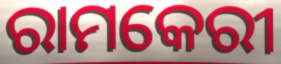
ରାମକେରୀ